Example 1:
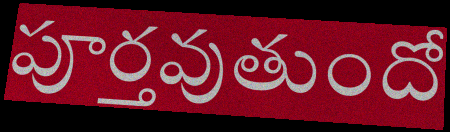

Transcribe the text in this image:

పూర్తవుతుందో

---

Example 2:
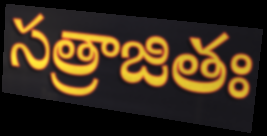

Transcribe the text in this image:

సత్రాజితః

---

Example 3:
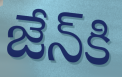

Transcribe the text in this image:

జేన్‌కి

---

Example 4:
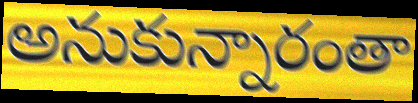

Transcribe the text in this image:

అనుకున్నారంతా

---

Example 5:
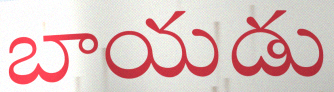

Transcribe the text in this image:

బాయడు